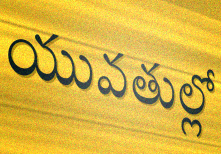
యువతుల్లో